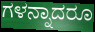
ಗಳನ್ನಾದರೂ